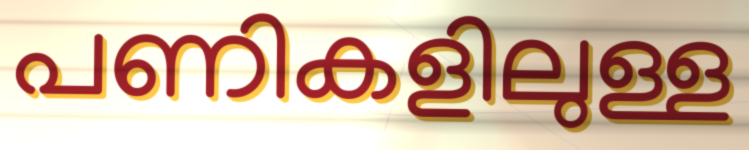
പണികളിലുള്ള